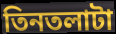
তিনতলাটা